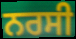
ਨਰਸੀ